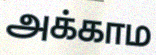
அக்காம